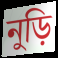
নুড়ি